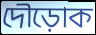
দৌড়োক